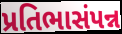
પ્રતિભાસંપન્ન